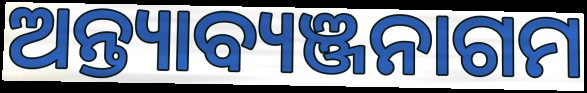
ଅନ୍ତ୍ୟାବ୍ୟଞ୍ଜନାଗମ